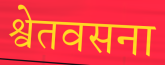
श्वेतवसना